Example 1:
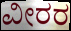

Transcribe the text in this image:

ವೀರರ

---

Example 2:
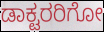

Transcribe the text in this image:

ಡಾಕ್ಟರರಿಗೋ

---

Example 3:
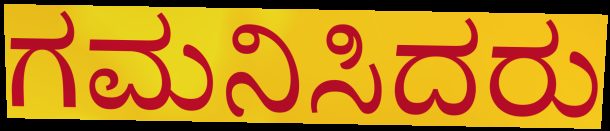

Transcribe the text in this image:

ಗಮನಿಸಿದರು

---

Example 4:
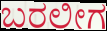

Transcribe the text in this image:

ಬರಲೀಗ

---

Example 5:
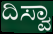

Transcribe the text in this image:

ದಿಸ್ವಾ